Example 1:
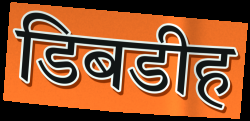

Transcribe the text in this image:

डिबडीह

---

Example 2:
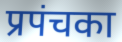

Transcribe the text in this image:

प्रपंचका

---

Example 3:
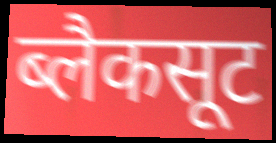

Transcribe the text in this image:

ब्लैकसूट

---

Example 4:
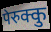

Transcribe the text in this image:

पेरुक्कु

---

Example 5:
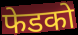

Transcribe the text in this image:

फेडको